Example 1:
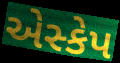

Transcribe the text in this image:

એસ્કેપ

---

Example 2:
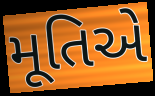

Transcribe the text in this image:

મૂતિએ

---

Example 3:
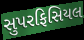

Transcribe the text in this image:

સુપરફિસિયલ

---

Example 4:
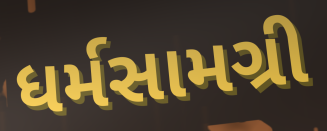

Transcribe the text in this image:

ધર્મસામગ્રી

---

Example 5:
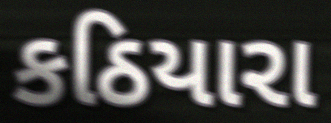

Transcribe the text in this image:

કઠિયારા